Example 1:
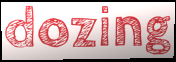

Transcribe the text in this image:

dozing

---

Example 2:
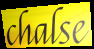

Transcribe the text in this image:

chalse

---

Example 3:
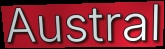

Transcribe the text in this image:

Austral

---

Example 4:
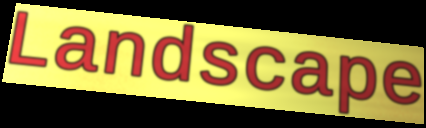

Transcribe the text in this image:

Landscape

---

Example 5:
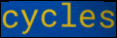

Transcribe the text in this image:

cycles